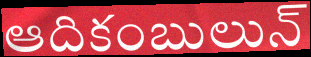
ఆదికంబులున్